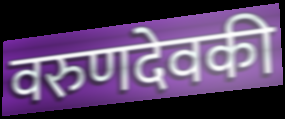
वरुणदेवकी